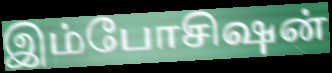
இம்போசிஷன்